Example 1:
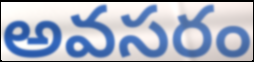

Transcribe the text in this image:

అవసరం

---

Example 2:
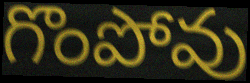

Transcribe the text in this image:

గొంపోవు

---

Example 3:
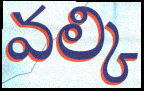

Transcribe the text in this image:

వల్కి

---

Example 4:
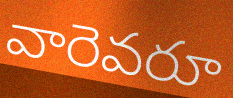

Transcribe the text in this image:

వారెవరూ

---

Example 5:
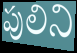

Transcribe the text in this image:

పులిని